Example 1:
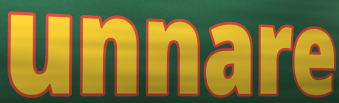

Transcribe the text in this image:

unnare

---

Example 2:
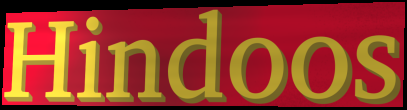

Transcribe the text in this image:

Hindoos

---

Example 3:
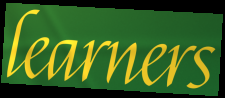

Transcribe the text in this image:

learners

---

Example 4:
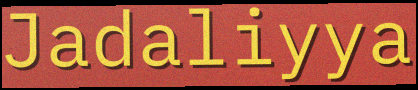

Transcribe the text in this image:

Jadaliyya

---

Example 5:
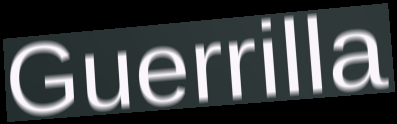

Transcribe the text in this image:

Guerrilla